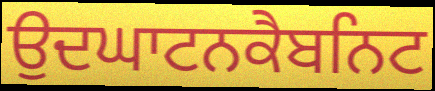
ਉਦਘਾਟਨਕੈਬਨਿਟ